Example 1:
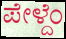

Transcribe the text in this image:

ಪೇಳ್ದೆಂ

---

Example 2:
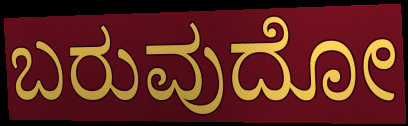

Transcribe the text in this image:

ಬರುವುದೋ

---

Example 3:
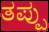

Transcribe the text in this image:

ತಪ್ಪು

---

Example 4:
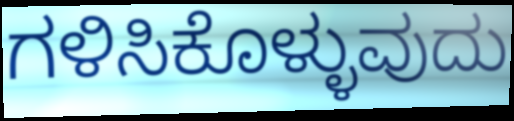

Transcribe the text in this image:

ಗಳಿಸಿಕೊಳ್ಳುವುದು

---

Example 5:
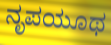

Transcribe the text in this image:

ನೃಪಯೂಥ